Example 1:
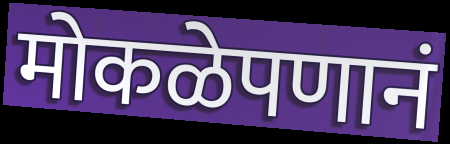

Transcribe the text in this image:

मोकळेपणानं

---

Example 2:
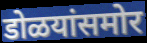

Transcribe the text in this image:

डोळयांसमोर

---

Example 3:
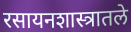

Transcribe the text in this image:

रसायनशास्त्रातले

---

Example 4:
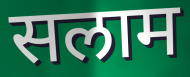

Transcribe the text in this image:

सलाम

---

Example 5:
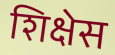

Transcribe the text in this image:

शिक्षेस